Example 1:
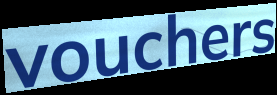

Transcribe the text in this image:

vouchers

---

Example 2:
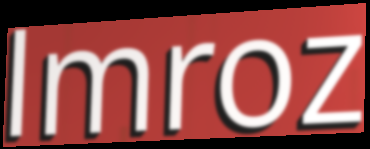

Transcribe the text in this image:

Imroz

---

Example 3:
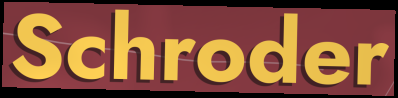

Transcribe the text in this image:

Schroder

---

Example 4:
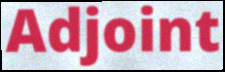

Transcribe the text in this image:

Adjoint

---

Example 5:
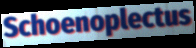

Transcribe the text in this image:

Schoenoplectus